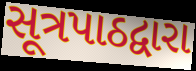
સૂત્રપાઠદ્વારા